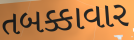
તબક્કાવાર